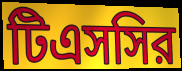
টিএসসির